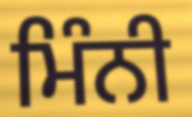
ਮਿੰਨੀ